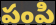
పంపి